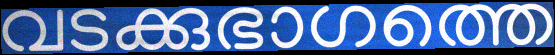
വടക്കുഭാഗത്തെ